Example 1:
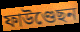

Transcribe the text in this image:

ফাউণ্ডেছন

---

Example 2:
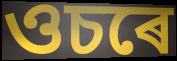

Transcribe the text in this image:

ওচৰে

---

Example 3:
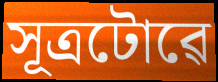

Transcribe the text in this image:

সূত্ৰটোৱে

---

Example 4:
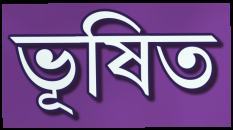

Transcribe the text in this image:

ভূষিত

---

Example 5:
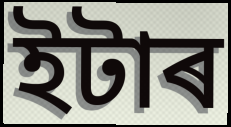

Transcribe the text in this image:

ইটাৰ